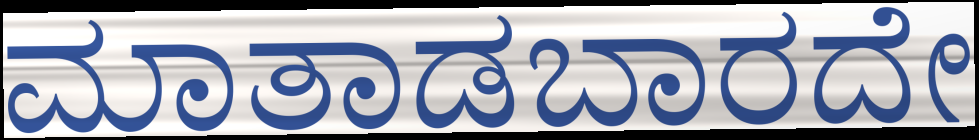
ಮಾತಾಡಬಾರದೇ